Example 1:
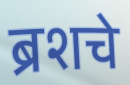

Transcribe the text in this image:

ब्रशचे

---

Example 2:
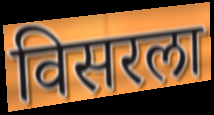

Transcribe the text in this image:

विसरला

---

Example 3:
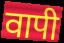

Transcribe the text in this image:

वापी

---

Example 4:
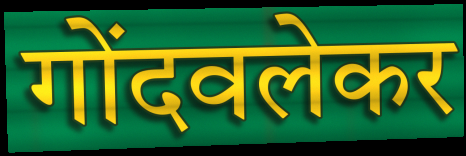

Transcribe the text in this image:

गोंदवलेकर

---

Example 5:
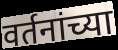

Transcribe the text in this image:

वर्तनांच्या